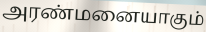
அரண்மனையாகும்